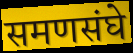
समणसंघे